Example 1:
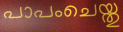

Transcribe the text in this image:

പാപംചെയ്തു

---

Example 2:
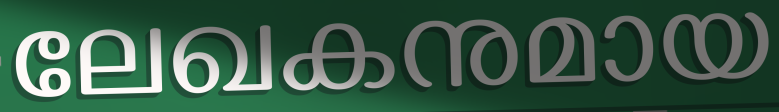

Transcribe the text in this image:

ലേഖകനുമായ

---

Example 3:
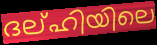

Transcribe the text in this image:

ദല്ഹിയിലെ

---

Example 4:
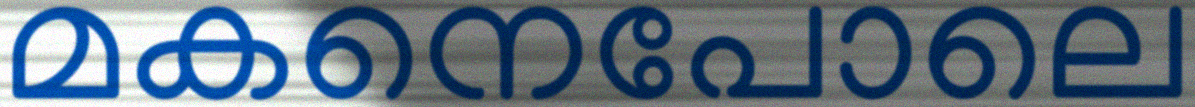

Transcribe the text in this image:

മകനെപോലെ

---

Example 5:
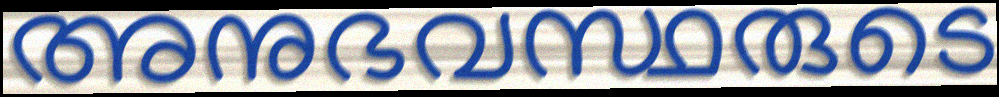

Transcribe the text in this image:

അനുഭവസ്ഥരുടെ